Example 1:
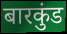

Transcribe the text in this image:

बारकुंड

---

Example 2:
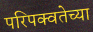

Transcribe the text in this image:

परिपक्वतेच्या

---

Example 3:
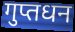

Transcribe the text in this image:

गुप्तधन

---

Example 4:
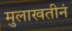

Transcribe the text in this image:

मुलाखतीनं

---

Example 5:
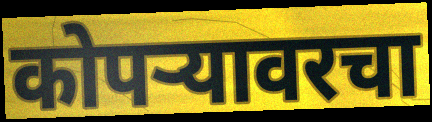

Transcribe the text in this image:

कोपऱ्यावरचा